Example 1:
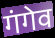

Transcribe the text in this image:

गंगेव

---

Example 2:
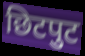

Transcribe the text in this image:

छिटपुट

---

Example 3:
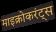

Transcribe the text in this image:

माइक्रोकरंट्स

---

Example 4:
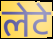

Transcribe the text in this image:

लेटे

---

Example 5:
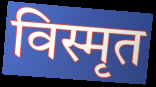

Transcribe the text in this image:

विस्मृत